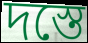
দস্তে